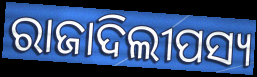
ରାଜାଦିଲୀପସ୍ୟ